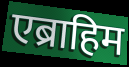
एब्राहिम